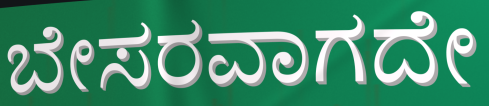
ಬೇಸರವಾಗದೇ